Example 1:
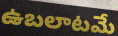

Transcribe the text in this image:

ఉబలాటమే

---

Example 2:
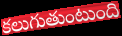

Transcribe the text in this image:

కలుగుతుంటుంది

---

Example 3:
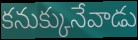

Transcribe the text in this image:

కనుక్కునేవాడు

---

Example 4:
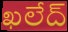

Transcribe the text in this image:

ఖలేద్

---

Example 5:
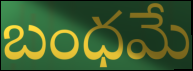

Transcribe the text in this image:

బంధమే